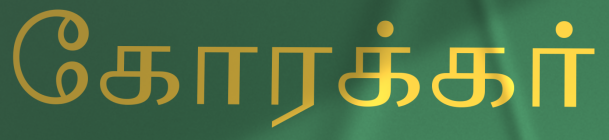
கோரக்கர்